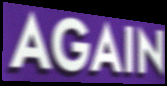
AGAIN